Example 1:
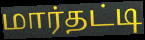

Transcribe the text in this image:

மார்தட்டி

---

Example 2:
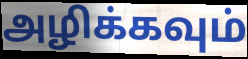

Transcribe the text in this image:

அழிக்கவும்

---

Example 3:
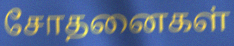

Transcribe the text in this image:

சோதனைகள்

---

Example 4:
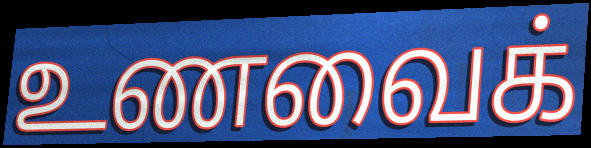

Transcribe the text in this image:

உணவைக்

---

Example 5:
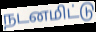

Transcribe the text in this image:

நடனமிட்டு